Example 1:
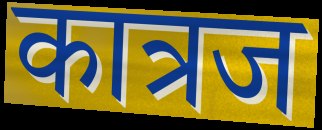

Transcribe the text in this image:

कात्रज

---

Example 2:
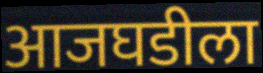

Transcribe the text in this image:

आजघडीला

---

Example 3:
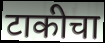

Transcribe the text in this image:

टाकीचा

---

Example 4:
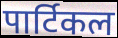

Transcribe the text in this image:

पार्टिकल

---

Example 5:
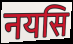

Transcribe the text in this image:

नयसि